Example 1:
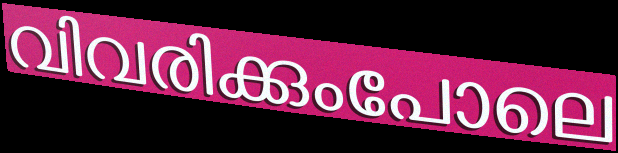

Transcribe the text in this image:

വിവരിക്കുംപോലെ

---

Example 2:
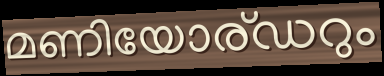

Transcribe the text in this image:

മണിയോര്ഡറും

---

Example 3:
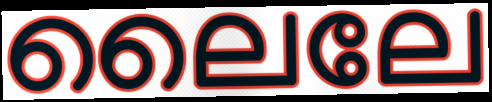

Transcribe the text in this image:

ലൈലേ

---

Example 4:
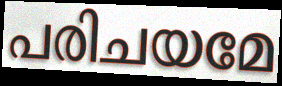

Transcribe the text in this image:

പരിചയമേ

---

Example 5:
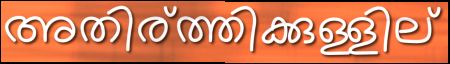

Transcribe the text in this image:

അതിര്ത്തിക്കുള്ളില്